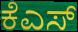
ಕೆಎಸ್